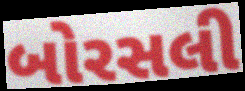
બોરસલી